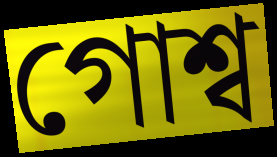
গোশ্ব